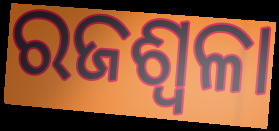
ରଜଶ୍ୱଳା